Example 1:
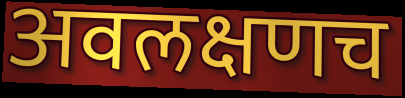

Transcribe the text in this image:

अवलक्षणच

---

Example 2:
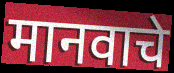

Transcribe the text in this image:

मानवाचे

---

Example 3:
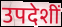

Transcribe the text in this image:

उपदेशीं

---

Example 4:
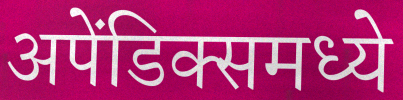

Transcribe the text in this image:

अपेंडिक्समध्ये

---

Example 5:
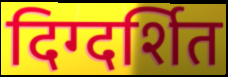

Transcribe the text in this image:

दिग्दर्शित